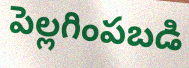
పెల్లగింపబడి